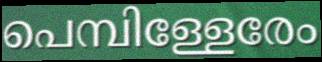
പെമ്പിള്ളേരേം